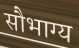
सौभाग्य